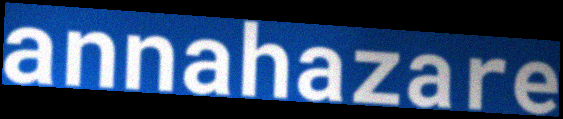
annahazare